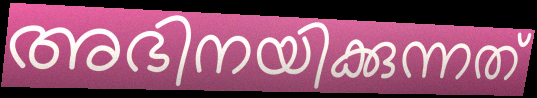
അഭിനയിക്കുന്നത്